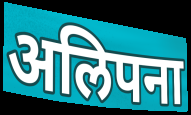
अलिपना